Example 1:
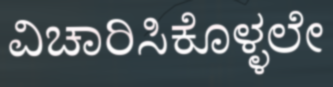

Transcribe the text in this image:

ವಿಚಾರಿಸಿಕೊಳ್ಳಲೇ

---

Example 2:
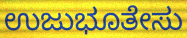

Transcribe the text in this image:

ಉಜುಭೂತೇಸು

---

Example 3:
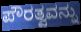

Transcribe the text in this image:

ಪೌರತ್ವವನ್ನು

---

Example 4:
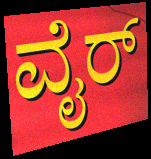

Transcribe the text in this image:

ವೈರ್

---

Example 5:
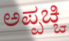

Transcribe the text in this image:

ಅಪ್ಪಚ್ಚಿ